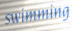
swimming